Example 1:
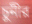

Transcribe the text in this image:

চুনীর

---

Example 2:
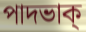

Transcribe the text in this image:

পাদভাক্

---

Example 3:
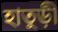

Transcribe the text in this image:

হাতুড়ী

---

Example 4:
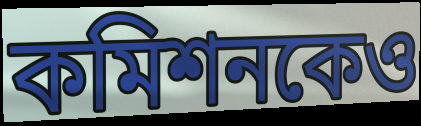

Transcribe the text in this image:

কমিশনকেও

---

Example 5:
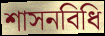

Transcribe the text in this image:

শাসনবিধি